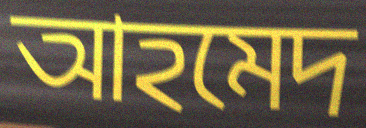
আহমেদ